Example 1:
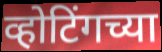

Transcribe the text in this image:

व्होटिंगच्या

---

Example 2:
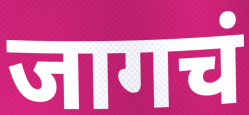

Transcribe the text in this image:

जागचं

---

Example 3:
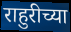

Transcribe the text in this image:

राहुरीच्या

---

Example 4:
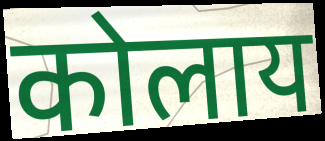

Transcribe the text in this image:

कोलाय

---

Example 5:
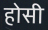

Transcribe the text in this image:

होसी